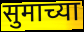
सुमाच्या